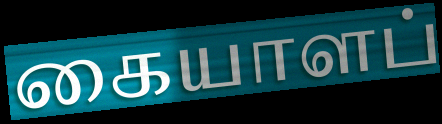
கையாளப்